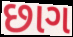
છાગ